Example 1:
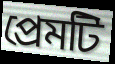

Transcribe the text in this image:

প্রেমটি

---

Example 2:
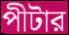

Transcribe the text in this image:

পীটার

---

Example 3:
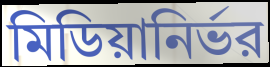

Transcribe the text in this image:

মিডিয়ানির্ভর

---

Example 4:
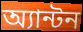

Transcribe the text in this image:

অ্যান্টন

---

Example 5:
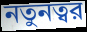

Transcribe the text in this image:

নতুনত্বর